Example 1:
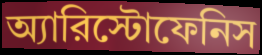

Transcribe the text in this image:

অ্যারিস্টোফেনিস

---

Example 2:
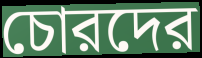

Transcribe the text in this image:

চোরদের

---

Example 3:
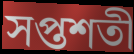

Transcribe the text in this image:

সপ্তশতী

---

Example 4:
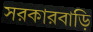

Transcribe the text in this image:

সরকারবাড়ি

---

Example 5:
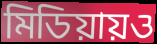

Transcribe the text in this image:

মিডিয়ায়ও